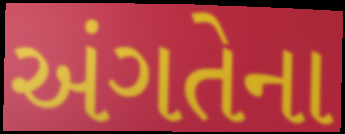
અંગતેના